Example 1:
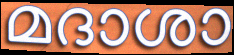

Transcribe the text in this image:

മദാശാ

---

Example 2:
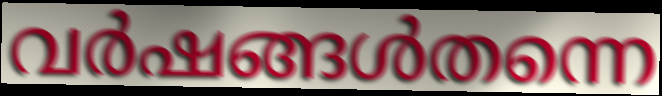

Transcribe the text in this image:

വർഷങ്ങൾതന്നെ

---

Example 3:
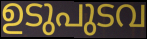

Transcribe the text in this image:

ഉടുപുടവ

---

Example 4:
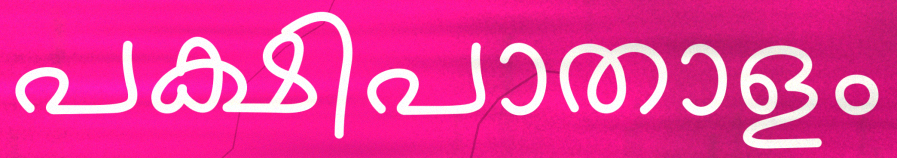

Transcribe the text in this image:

പക്ഷിപാതാളം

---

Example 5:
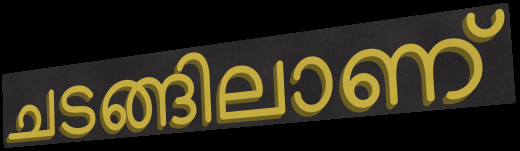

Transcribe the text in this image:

ചടങ്ങിലാണ്